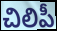
చిలిపీ